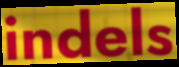
indels